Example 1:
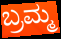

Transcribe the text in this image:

ಬ್ರಮ್ಮ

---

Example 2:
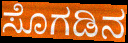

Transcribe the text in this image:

ಸೊಗಡಿನ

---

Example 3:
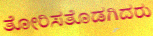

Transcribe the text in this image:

ತೋರಿಸತೊಡಗಿದರು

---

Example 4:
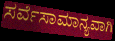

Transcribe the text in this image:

ಸರ್ವೆಸಾಮಾನ್ಯವಾಗಿ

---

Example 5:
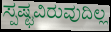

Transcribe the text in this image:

ಸ್ಪಷ್ಟವಿರುವುದಿಲ್ಲ